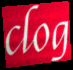
clog